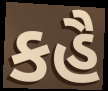
કહૈ